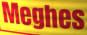
Meghes